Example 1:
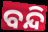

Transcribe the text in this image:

ବନ୍ଦି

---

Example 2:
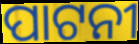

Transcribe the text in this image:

ପାଟନୀ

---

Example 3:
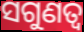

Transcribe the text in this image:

ସଗୁଣତ୍ଵ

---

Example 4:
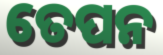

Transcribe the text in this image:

ତେପନ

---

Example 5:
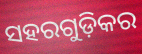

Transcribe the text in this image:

ସହରଗୁଡ଼ିକର